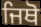
ਜਿਥੋ